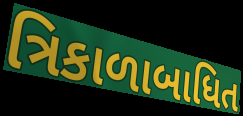
ત્રિકાળાબાધિત